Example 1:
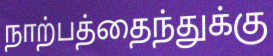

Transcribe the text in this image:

நாற்பத்தைந்துக்கு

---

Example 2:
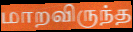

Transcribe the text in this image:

மாறவிருந்த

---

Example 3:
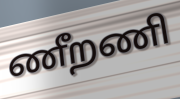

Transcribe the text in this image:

ணீறணி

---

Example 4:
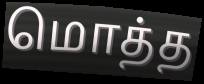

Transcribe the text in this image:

மொத்த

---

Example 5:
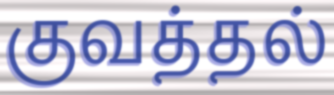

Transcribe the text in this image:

குவத்தல்